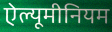
ऐल्यूमीनियम